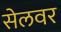
सेलवर